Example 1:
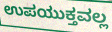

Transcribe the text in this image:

ಉಪಯುಕ್ತವಲ್ಲ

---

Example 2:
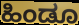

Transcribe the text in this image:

ಹಿಂಡೂ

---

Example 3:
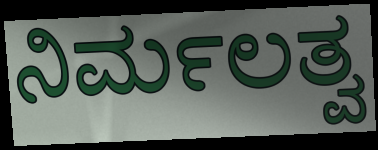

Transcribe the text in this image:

ನಿರ್ಮಲತ್ವ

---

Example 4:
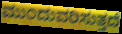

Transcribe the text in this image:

ಮುಂದುವರಿಸುತ್ತದೆ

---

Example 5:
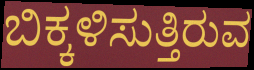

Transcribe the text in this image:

ಬಿಕ್ಕಳಿಸುತ್ತಿರುವ